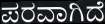
ಪರವಾಗಿದೆ